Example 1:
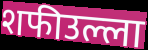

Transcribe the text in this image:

शफीउल्ला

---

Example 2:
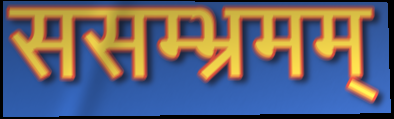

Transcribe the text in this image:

ससम्भ्रमम्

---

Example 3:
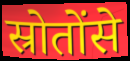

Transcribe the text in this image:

स्रोतोंसे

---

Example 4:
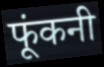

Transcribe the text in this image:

फूंकनी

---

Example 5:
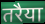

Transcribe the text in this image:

तरैया